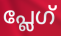
പ്ലേഗ്